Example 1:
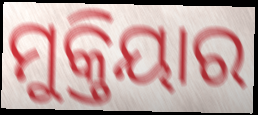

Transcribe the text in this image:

ମୁକ୍ତିୟାର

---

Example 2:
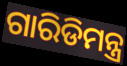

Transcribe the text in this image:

ଗାରିଡିମନ୍ତ୍ର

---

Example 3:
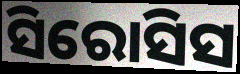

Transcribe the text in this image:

ସିରୋସିସ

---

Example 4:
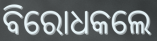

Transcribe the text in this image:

ବିରୋଧକଲେ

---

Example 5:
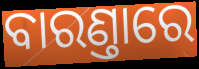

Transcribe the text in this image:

ବାରଣ୍ତାରେ